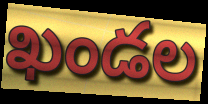
ఖండల